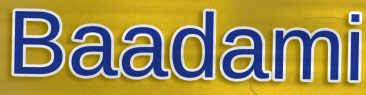
Baadami